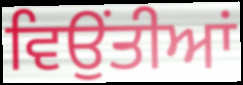
ਵਿਉਂਤੀਆਂ